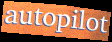
autopilot